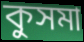
কুসমা